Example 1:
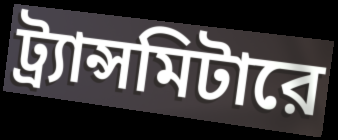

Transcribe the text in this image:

ট্র্যান্সমিটারে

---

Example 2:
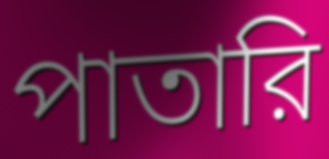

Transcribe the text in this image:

পাতারি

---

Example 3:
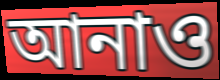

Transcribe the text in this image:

আনাও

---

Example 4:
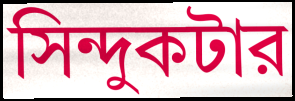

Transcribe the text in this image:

সিন্দুকটার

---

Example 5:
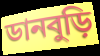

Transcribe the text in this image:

ডানবুড়ি